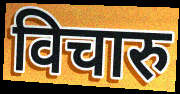
विचारु